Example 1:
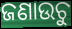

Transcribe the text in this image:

ଜଣାଉଚୁ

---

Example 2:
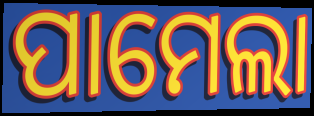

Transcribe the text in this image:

ପାମେଲା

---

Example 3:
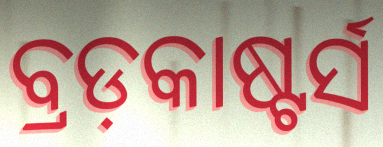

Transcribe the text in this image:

ବ୍ରଡ଼କାଷ୍ଟର୍ସ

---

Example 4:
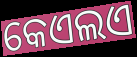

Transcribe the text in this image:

କେଏଲଏ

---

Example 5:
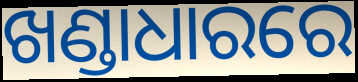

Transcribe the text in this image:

ଖଣ୍ଡାଧାରରେ